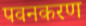
पवनकरण